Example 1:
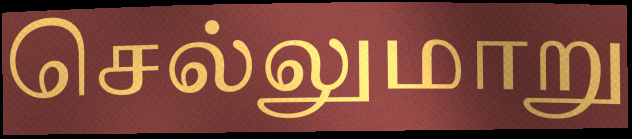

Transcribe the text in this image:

செல்லுமாறு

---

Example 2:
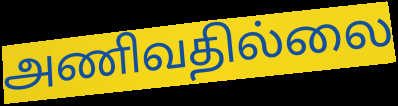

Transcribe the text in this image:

அணிவதில்லை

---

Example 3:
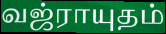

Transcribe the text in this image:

வஜ்ராயுதம்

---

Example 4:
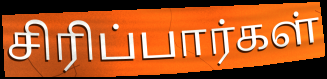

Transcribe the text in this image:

சிரிப்பார்கள்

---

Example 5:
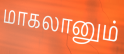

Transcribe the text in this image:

மாகலானும்